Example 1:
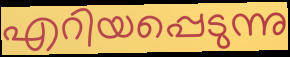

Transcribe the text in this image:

എറിയപ്പെടുന്നു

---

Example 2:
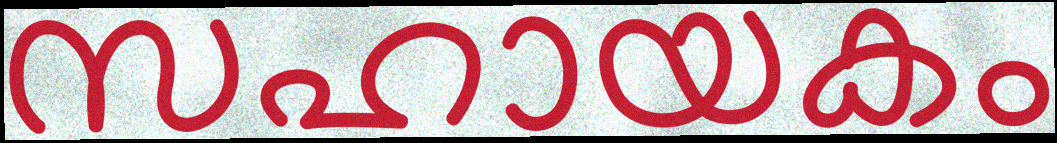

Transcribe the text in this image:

സഹായകം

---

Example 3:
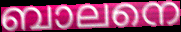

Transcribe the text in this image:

ബാലനെ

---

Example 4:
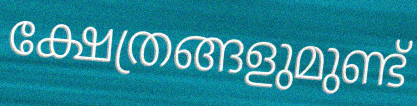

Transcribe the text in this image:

ക്ഷേത്രങ്ങളുമുണ്ട്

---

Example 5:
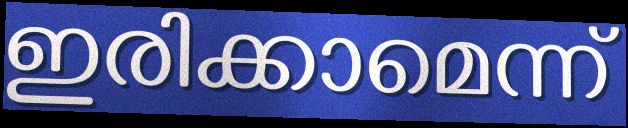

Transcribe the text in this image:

ഇരിക്കാമെന്ന്